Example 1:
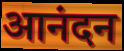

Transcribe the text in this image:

आनंदन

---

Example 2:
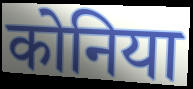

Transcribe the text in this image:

कोनिया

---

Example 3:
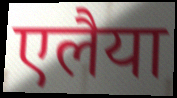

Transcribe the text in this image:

एलैया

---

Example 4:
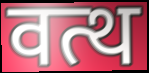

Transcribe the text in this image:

वत्थ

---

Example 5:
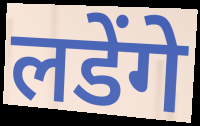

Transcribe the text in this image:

लडेंगे